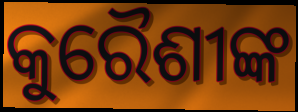
କୁରୈଶୀଙ୍କ